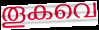
തൂകവെ